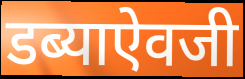
डब्याऐवजी